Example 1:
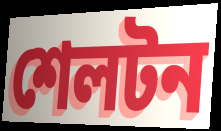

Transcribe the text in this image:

শেলটন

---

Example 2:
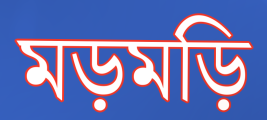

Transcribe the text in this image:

মড়মড়ি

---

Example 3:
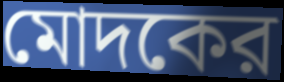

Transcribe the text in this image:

মোদকের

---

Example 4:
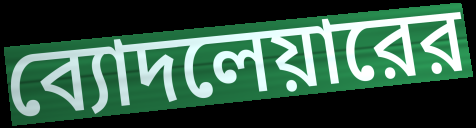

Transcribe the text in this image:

ব্যোদলেয়ারের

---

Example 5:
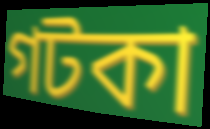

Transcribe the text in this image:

গটকা